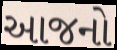
આજનો